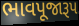
ભાવપૂજારૂપ